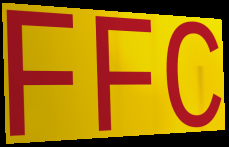
FFC